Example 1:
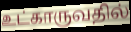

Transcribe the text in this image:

உட்காருவதில்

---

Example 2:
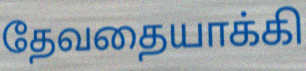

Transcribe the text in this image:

தேவதையாக்கி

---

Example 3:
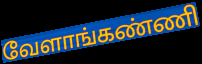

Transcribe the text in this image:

வேளாங்கண்ணி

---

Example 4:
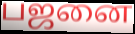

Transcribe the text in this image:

பஜனை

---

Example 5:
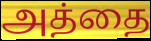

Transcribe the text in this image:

அத்தை